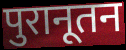
पुरानूतन